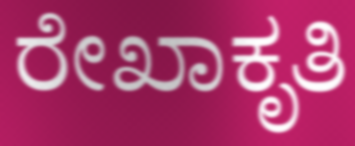
ರೇಖಾಕೃತಿ